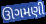
ઊગમણી